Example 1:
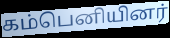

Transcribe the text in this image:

கம்பெனியினர்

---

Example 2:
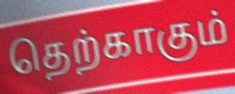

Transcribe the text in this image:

தெற்காகும்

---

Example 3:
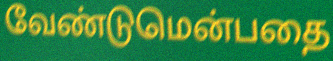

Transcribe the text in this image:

வேண்டுமென்பதை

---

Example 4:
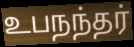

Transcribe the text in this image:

உபநந்தர்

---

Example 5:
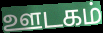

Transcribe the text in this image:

ஊடகம்